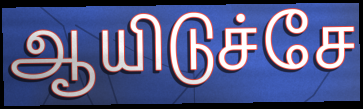
ஆயிடுச்சே